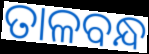
ତାଳବନ୍ଧ